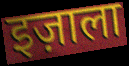
इज़ाला